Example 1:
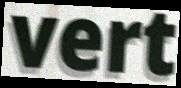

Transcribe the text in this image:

vert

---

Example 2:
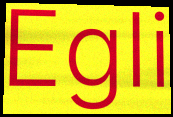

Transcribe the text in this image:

Egli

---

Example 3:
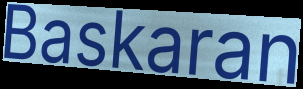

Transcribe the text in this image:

Baskaran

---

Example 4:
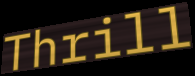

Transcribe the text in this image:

Thrill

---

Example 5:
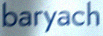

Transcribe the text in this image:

baryach